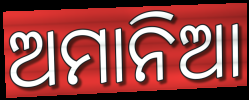
ଅମାନିଆ